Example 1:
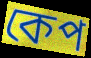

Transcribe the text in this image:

কেপ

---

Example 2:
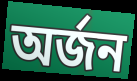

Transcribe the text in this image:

অৰ্জন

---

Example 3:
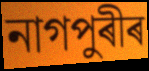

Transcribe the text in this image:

নাগপুৰীৰ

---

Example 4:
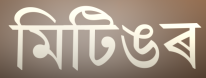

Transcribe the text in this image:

মিটিঙৰ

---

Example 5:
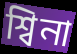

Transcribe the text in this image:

শ্বিনা